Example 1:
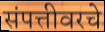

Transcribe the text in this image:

संपत्तीवरचे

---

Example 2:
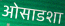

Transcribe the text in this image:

ओसाडशा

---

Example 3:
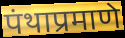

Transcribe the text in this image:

पंथाप्रमाणे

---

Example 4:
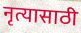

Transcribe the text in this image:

नृत्यासाठी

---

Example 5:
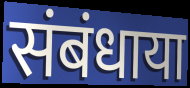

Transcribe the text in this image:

संबंधाया